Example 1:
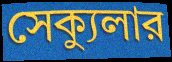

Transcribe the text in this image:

সেক্যুলার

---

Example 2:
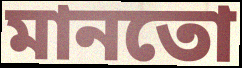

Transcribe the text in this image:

মানতো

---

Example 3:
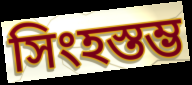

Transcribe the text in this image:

সিংহস্তম্ভ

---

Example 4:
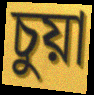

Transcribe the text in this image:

চুয়া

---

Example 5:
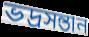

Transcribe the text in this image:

ভদ্রসন্তান